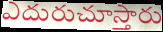
ఎదురుచూస్తారు